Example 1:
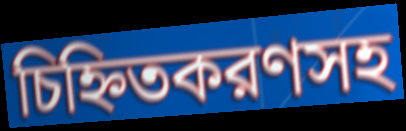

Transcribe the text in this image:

চিহ্নিতকরণসহ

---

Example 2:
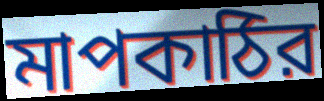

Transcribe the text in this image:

মাপকাঠির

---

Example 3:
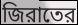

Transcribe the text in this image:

জিরাতের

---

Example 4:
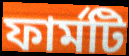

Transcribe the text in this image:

ফার্মটি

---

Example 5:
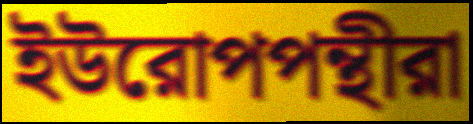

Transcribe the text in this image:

ইউরোপপন্থীরা